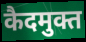
कैदमुक्त